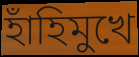
হাঁহিমুখে